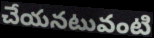
చేయనటువంటి